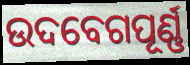
ଉଦବେଗପୂର୍ଣ୍ଣ